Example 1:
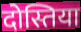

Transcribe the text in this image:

दोस्तिया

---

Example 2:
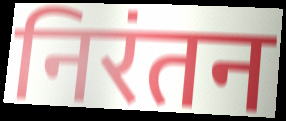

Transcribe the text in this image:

निरंतन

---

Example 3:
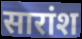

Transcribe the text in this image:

सारांश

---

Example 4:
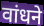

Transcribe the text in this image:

वांधने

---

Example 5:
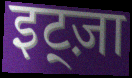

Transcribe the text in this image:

इट्ज़ा